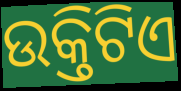
ଉକ୍ତିଟିଏ